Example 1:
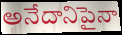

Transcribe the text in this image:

అనేదానిపైనా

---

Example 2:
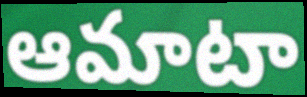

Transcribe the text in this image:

ఆమాటా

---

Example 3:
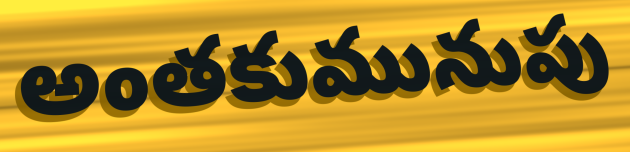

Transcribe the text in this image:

అంతకుమునుపు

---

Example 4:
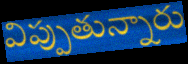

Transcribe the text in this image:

విప్పుతున్నారు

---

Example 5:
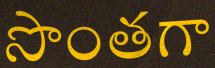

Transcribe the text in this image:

సొంతగా